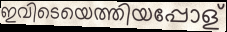
ഇവിടെയെത്തിയപ്പോള്